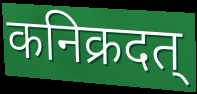
कनिक्रदत्